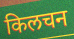
किलचन